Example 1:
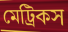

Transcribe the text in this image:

মেট্রিকস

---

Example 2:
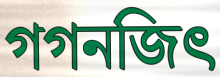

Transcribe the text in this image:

গগনজিৎ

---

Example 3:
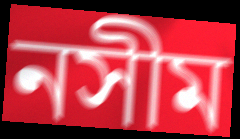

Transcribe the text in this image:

নসীম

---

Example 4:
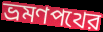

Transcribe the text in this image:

ভ্রমণপথের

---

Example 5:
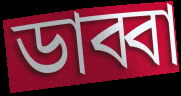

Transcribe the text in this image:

ডাব্বা